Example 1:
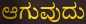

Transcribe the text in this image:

ಆಗುವುದು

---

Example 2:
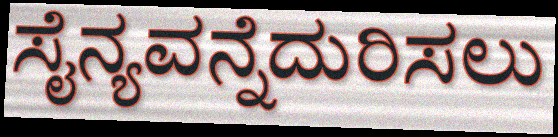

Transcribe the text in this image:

ಸೈನ್ಯವನ್ನೆದುರಿಸಲು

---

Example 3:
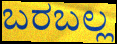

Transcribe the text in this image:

ಬರಬಲ್ಲ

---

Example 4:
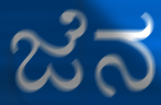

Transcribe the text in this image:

ಜೆನ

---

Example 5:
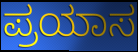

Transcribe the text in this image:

ಪ್ರಯಾಸ